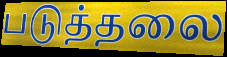
படுத்தலை